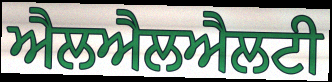
ਐਲਐਲਐਲਟੀ